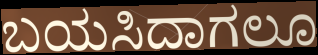
ಬಯಸಿದಾಗಲೂ